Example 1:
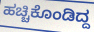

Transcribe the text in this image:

ಹಚ್ಚಿಕೊಂಡಿದ್ದ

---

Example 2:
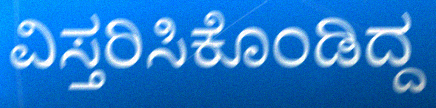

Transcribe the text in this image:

ವಿಸ್ತರಿಸಿಕೊಂಡಿದ್ದ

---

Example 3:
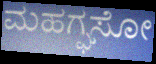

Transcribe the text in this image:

ಮಹಗ್ಘಸೋ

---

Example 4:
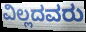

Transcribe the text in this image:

ವಿಲ್ಲದವರು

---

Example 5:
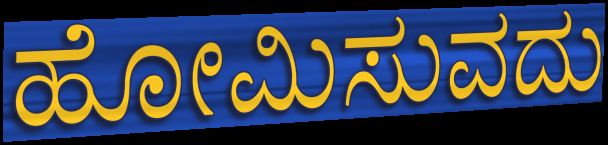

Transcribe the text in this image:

ಹೋಮಿಸುವದು